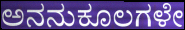
ಅನನುಕೂಲಗಳೇ